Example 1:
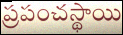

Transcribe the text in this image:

ప్రపంచస్థాయి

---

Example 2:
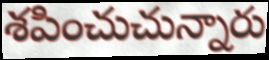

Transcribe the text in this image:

శపించుచున్నారు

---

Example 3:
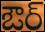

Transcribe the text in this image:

ఔర్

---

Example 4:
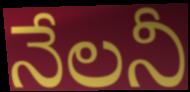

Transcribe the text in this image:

నేలనీ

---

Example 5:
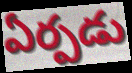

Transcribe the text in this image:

ఏర్పడు